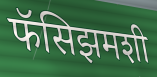
फॅसिझमशी